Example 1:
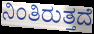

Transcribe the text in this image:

ನಿಂತಿರುತ್ತದೆ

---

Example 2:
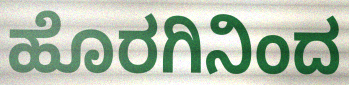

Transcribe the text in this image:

ಹೊರಗಿನಿಂದ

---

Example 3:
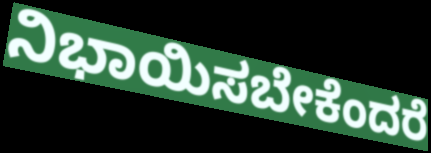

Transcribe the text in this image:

ನಿಭಾಯಿಸಬೇಕೆಂದರೆ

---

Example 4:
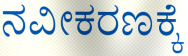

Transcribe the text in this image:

ನವೀಕರಣಕ್ಕೆ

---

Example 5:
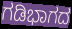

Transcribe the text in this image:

ಗಡಿಭಾಗದ